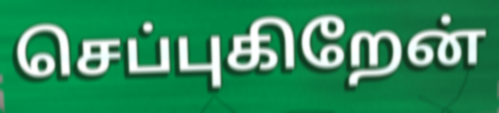
செப்புகிறேன்